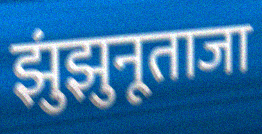
झुंझुनूताजा